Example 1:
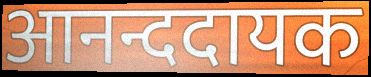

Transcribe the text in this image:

आनन्ददायक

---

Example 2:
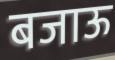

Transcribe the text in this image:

बजाऊ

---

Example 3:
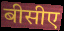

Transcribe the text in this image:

बीसीए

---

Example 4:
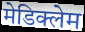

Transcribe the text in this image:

मेडिक्लेम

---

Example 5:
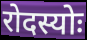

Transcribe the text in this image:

रोदस्योः